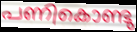
പണികൊണ്ടു